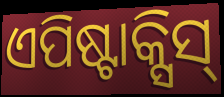
ଏପିଷ୍ଟାକ୍ସିସ୍